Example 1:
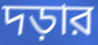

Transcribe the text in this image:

দড়ার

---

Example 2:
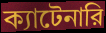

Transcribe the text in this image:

ক্যাটেনারি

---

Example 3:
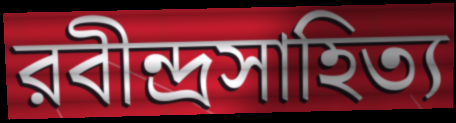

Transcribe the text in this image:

রবীন্দ্রসাহিত্য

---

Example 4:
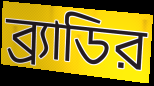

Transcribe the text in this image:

ব্র্যাডির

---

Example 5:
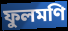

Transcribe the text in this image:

ফুলমণি